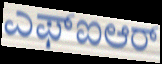
ಎಫ್ಐಆರ್